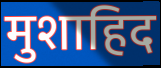
मुशाहिद